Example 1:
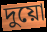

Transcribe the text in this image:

দুয়ো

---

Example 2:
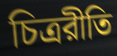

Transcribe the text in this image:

চিত্ররীতি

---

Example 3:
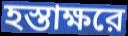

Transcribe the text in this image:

হস্তাক্ষরে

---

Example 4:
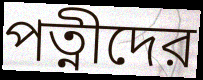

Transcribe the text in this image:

পত্নীদের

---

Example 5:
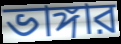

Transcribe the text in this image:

ভাঙ্গার